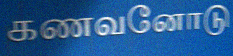
கணவனோடு